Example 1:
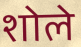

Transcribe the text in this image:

शोले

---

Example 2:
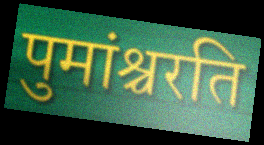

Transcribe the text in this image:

पुमांश्चरति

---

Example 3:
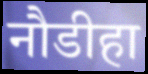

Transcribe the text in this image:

नौडीहा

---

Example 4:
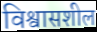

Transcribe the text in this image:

विश्वासशील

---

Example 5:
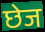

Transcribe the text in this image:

छेज